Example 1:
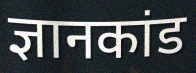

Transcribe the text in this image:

ज्ञानकांड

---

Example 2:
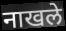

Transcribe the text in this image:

नाखले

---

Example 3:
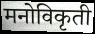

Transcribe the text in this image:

मनोविकृती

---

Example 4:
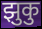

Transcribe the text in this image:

झुकु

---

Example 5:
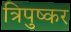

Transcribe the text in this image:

त्रिपुष्कर